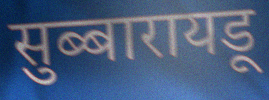
सुब्बारायडू